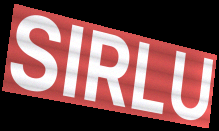
SIRLU